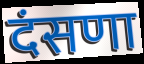
दंसणा